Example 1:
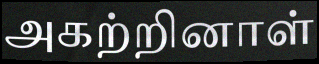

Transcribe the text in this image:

அகற்றினாள்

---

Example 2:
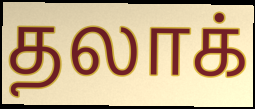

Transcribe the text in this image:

தலாக்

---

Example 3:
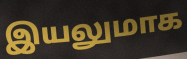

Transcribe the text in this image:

இயலுமாக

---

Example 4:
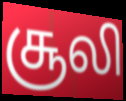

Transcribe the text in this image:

சூலி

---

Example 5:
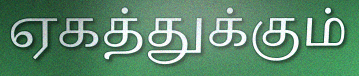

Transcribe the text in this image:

ஏகத்துக்கும்